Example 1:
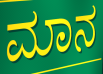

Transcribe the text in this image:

ಮಾನ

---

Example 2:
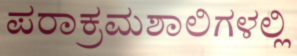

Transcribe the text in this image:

ಪರಾಕ್ರಮಶಾಲಿಗಳಲ್ಲಿ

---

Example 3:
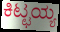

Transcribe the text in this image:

ಕಿಟ್ಟಯ್ಯ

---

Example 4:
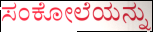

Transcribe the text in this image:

ಸಂಕೋಲೆಯನ್ನು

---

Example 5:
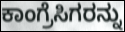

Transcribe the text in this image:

ಕಾಂಗ್ರೆಸಿಗರನ್ನು